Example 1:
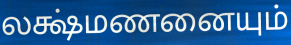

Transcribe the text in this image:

லக்ஷ்மணனையும்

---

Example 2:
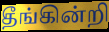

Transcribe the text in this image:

தீங்கின்றி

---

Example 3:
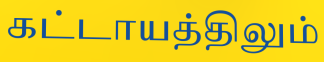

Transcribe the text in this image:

கட்டாயத்திலும்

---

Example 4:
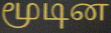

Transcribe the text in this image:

மூடின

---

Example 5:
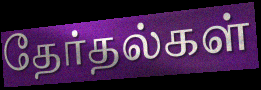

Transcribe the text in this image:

தேர்தல்கள்